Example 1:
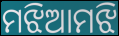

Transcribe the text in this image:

ମଝିଆମଝି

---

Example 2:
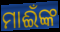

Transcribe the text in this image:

ମାଈଁଙ୍କ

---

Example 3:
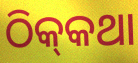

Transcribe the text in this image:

ଠିକ୍‌କଥା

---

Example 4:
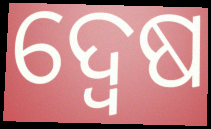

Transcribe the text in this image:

ଦ୍ବେଷ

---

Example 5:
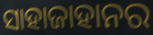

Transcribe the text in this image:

ସାହାଜାହାନର